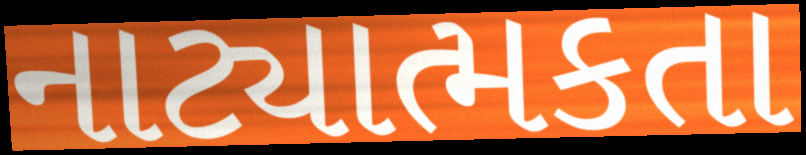
નાટ્યાત્મકતા